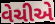
વેચીએ